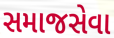
સમાજસેવા